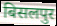
बिसलपुर